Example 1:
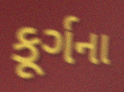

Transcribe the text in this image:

કૂર્ગના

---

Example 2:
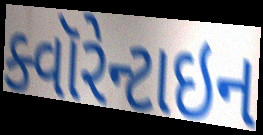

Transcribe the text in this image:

ક્વૉરેન્ટાઇન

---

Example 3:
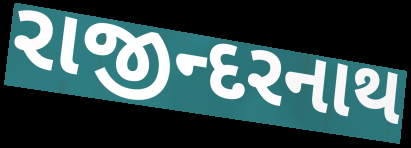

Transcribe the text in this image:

રાજીન્દરનાથ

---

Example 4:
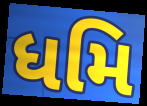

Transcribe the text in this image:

ધમિ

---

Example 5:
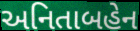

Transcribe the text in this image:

અનિતાબહેન